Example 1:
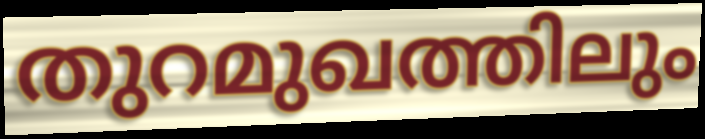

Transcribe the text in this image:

തുറമുഖത്തിലും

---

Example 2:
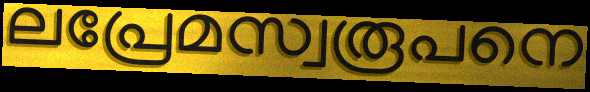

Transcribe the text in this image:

ലപ്രേമസ്വരൂപനെ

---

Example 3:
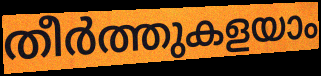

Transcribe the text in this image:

തീർത്തുകളയാം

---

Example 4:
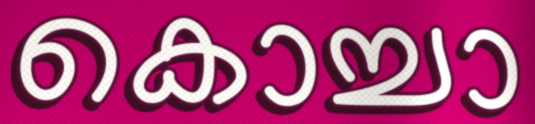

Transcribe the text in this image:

കൊച്ചാ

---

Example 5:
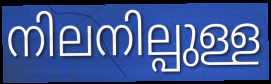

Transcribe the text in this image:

നിലനില്പുള്ള